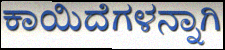
ಕಾಯಿದೆಗಳನ್ನಾಗಿ